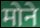
मोने